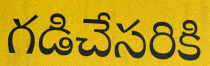
గడిచేసరికి